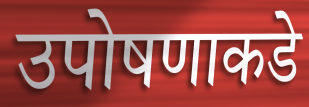
उपोषणाकडे